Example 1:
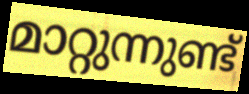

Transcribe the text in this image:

മാറ്റുന്നുണ്ട്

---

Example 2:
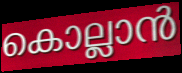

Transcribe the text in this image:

കൊല്ലാൻ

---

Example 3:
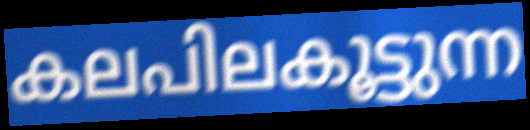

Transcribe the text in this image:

കലപിലകൂട്ടുന്ന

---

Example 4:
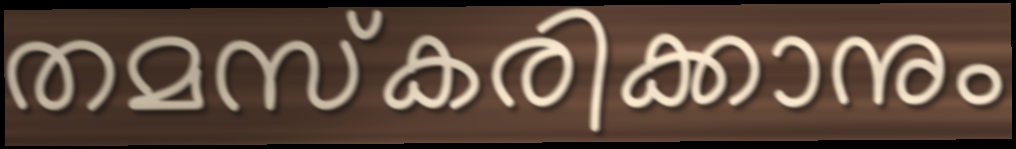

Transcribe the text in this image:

തമസ്കരിക്കാനും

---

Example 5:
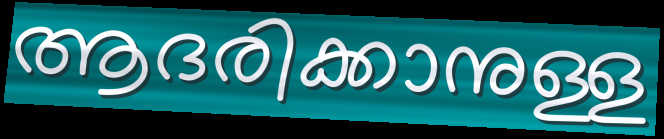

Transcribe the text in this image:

ആദരിക്കാനുള്ള